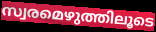
സ്വരമെഴുത്തിലൂടെ